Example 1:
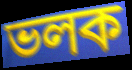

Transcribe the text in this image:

ভলক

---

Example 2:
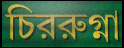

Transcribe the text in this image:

চিররুগ্না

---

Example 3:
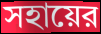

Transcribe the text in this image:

সহায়ের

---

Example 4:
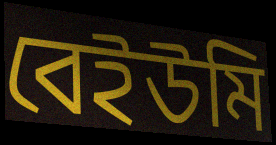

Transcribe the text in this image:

বেইউমি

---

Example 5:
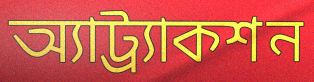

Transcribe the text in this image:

অ্যাট্র্যাকশন